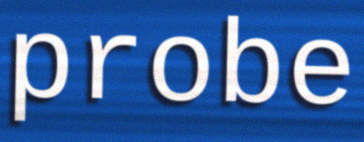
probe